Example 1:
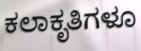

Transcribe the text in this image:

ಕಲಾಕೃತಿಗಳೂ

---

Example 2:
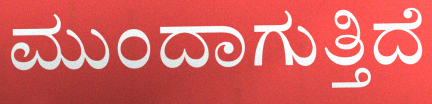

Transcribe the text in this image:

ಮುಂದಾಗುತ್ತಿದೆ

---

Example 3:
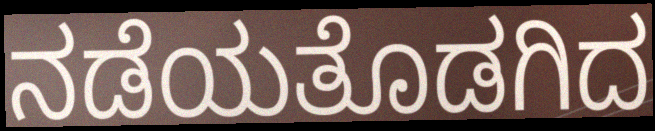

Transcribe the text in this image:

ನಡೆಯತೊಡಗಿದ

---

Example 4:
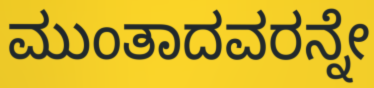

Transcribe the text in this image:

ಮುಂತಾದವರನ್ನೇ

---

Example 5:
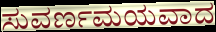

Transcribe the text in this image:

ಸುವರ್ಣಮಯವಾದ